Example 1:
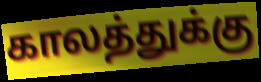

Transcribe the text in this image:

காலத்துக்கு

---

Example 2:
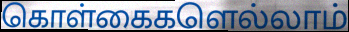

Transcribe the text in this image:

கொள்கைகளெல்லாம்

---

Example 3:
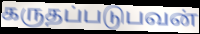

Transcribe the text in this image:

கருதப்படுபவன்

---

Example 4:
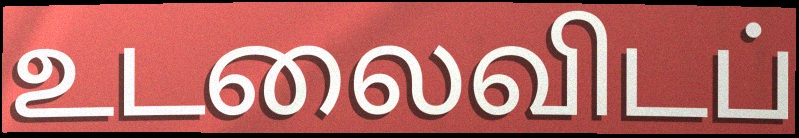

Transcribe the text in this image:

உடலைவிடப்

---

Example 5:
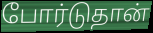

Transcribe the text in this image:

போர்டுதான்